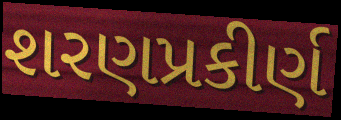
શરણપ્રકીર્ણ